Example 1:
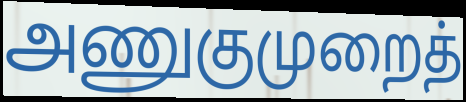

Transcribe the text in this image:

அணுகுமுறைத்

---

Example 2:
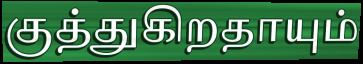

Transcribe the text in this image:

குத்துகிறதாயும்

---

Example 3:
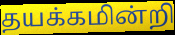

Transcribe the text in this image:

தயக்கமின்றி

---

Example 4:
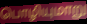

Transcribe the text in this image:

பொழியுமாறு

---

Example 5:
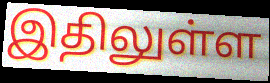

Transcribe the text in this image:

இதிலுள்ள